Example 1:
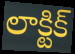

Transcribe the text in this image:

లాక్టిక్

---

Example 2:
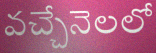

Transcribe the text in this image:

వచ్చేనెలలో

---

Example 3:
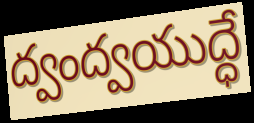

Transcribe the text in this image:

ద్వంద్వయుద్ధే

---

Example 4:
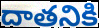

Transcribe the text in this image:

దాతనికి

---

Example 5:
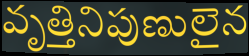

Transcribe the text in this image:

వృత్తినిపుణులైన